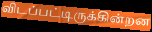
விடப்பட்டிருக்கின்றன